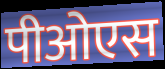
पीओएस